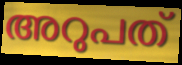
അറുപത്